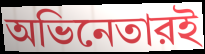
অভিনেতারই